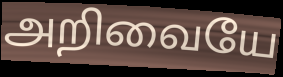
அறிவையே